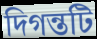
দিগন্তটি